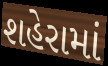
શહેરામાં